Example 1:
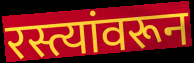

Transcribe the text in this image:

रस्त्यांवरून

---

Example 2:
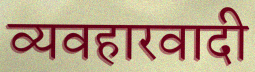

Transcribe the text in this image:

व्यवहारवादी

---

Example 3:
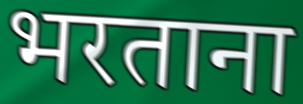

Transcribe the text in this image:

भरताना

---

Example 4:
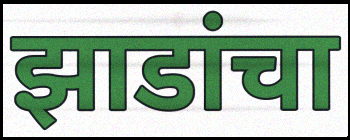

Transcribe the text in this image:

झाडांचा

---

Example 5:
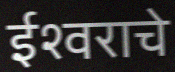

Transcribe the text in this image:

ईश्वराचे